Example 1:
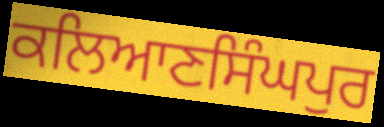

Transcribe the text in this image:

ਕਲਿਆਣਸਿੰਘਪੁਰ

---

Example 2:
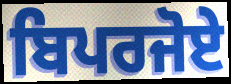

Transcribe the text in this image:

ਬਿਪਰਜੋਏ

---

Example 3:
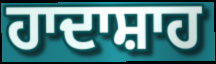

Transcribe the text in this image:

ਹਾਦਾਸ਼ਾਹ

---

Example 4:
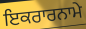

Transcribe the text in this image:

ਇਕਰਾਰਨਾਮੇ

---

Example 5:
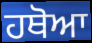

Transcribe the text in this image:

ਹਥੋਆ